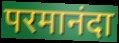
परमानंदा